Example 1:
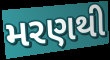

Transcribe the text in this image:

મરણથી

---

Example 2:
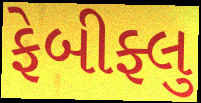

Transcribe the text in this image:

ફેબીફ્લુ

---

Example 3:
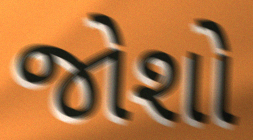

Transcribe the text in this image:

જોશો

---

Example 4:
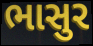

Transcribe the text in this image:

ભાસુર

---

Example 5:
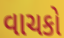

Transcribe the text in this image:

વાચકો